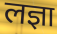
लज्ञा